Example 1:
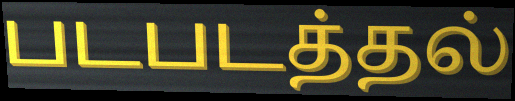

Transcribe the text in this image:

படபடத்தல்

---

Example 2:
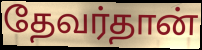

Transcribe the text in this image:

தேவர்தான்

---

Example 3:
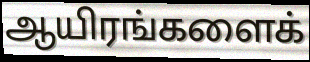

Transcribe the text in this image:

ஆயிரங்களைக்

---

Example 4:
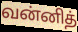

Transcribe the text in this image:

வன்னித்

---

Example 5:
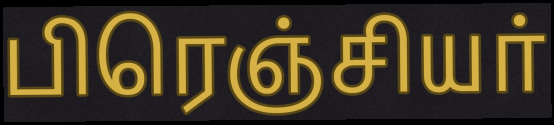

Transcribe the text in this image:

பிரெஞ்சியர்